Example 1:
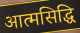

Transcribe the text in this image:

आत्मसिद्धि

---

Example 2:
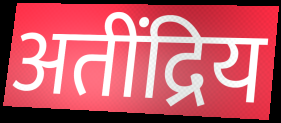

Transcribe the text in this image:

अतींद्रिय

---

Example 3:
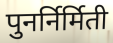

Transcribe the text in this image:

पुनर्निर्मिती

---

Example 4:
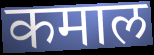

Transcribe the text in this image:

कमाल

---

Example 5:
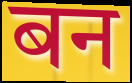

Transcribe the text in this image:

बन